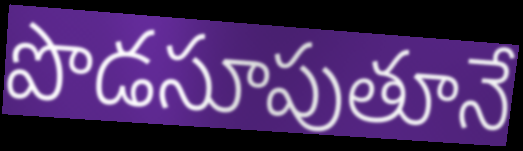
పొడసూపుతూనే